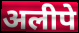
अलीपे